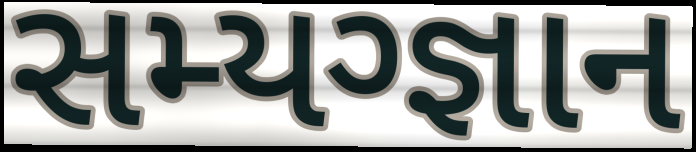
સમ્યગ્જ્ઞાન